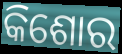
କିଶୋର